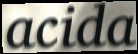
acida